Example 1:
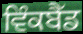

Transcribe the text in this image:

ਵਿੰਕਬੈੱਡ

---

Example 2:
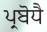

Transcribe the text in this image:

ਪ੍ਰਬੋਧੈ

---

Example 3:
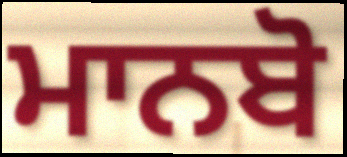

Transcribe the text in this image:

ਮਾਨਬੋ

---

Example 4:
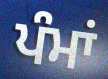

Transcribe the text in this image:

ਪੰਮਾਂ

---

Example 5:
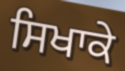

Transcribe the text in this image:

ਸਿਖਾਕੇ